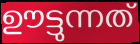
ഊട്ടുന്നത്